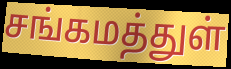
சங்கமத்துள்